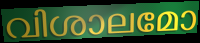
വിശാലമോ